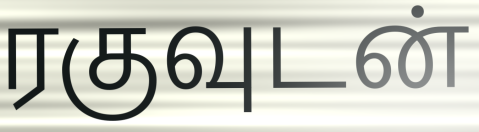
ரகுவுடன்